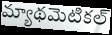
మ్యాథమెటికల్